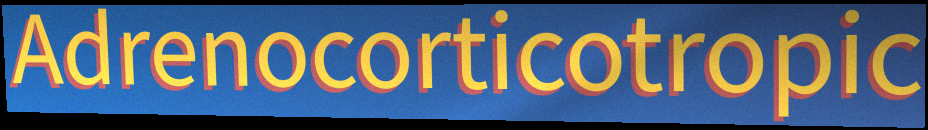
Adrenocorticotropic